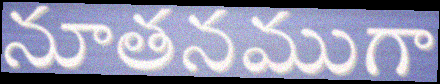
నూతనముగా